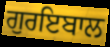
ਗੁਰਇਬਾਲ